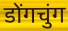
डोंगचुंग